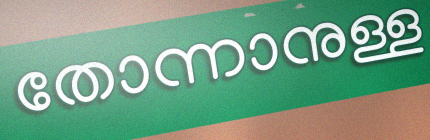
തോന്നാനുള്ള